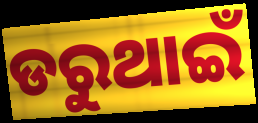
ଡରୁଥାଇଁ